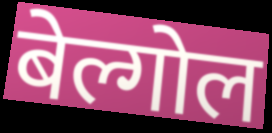
बेल्गोल